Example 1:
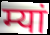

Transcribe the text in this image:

म्यां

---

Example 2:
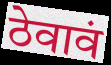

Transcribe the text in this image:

ठेवावं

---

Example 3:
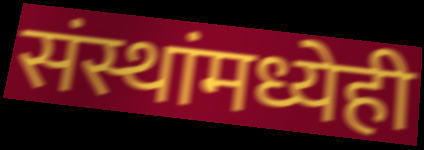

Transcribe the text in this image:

संस्थांमध्येही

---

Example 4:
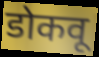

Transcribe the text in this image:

डोकवू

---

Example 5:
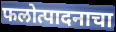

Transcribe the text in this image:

फलोत्पादनाचा